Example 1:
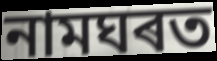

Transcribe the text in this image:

নামঘৰত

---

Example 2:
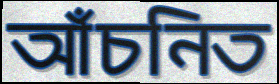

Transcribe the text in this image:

আঁচনিত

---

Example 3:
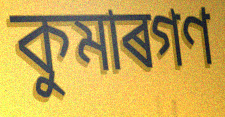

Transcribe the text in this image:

কুমাৰগণ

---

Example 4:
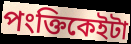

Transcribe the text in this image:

পংক্তিকেইটা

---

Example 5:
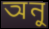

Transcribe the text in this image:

অনু